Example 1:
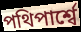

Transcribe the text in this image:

পথিপার্শ্বে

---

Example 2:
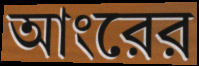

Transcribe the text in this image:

আংরের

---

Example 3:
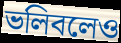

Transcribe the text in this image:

ভলিবলেও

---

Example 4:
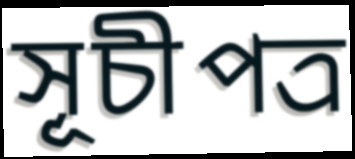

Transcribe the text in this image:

সূচীপত্র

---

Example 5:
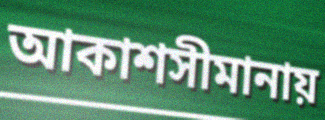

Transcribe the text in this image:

আকাশসীমানায়